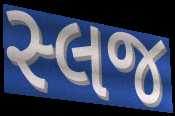
સ્લજ